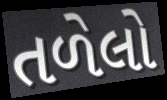
તળેલો